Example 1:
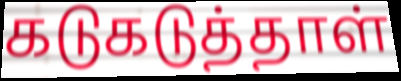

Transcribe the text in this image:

கடுகடுத்தாள்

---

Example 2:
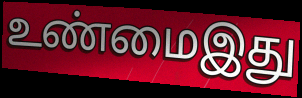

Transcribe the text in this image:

உண்மைஇது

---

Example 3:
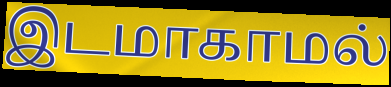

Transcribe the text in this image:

இடமாகாமல்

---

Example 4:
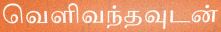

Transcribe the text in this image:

வெளிவந்தவுடன்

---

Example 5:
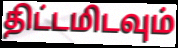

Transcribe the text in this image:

திட்டமிடவும்